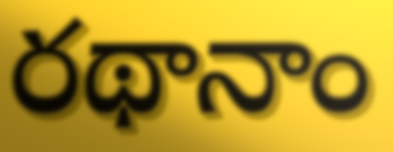
రథానాం